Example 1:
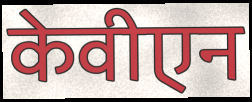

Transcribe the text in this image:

केवीएन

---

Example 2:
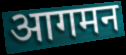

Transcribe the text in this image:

आगमन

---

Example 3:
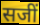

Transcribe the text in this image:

सजीं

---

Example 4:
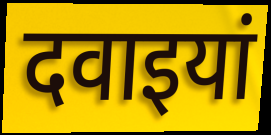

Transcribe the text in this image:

दवाइयां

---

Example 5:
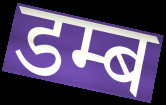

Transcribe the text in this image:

डम्ब